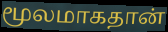
மூலமாகதான்